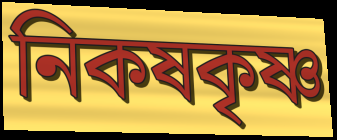
নিকষকৃষ্ণ